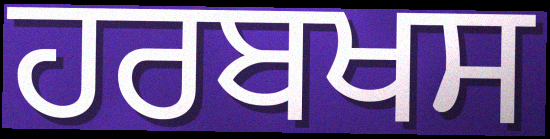
ਹਰਬਖਸ